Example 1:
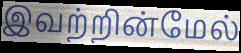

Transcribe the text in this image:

இவற்றின்மேல்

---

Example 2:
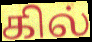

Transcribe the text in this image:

கில்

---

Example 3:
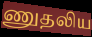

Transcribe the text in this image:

ணுதலிய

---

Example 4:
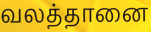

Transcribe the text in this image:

வலத்தானை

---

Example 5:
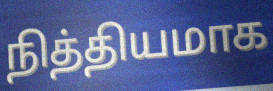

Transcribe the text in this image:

நித்தியமாக